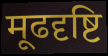
मूढदृष्टि